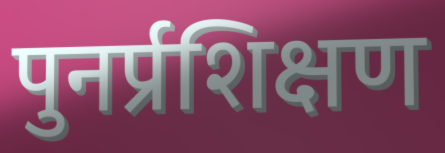
पुनर्प्रशिक्षण